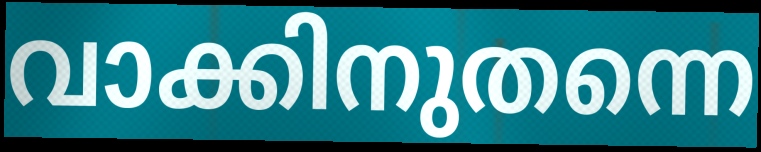
വാക്കിനുതന്നെ